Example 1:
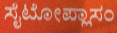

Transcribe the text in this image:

ಸೈಟೋಪ್ಲಾಸಂ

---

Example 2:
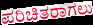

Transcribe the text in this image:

ಪರಿಚಿತರಾಗಲು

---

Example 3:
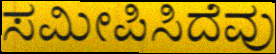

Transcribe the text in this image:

ಸಮೀಪಿಸಿದೆವು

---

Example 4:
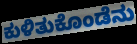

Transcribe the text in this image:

ಕುಳಿತುಕೊಂಡೆನು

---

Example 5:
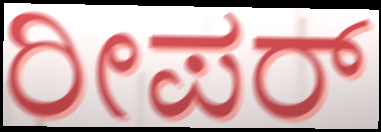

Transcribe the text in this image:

ರೀಪರ್